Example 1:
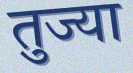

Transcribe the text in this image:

तुज्या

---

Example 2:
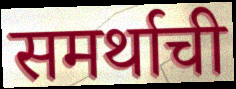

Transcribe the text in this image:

समर्थाची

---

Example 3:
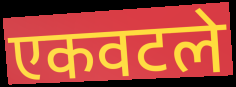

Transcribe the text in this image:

एकवटले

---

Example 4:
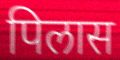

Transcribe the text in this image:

पिलास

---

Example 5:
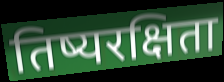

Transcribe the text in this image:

तिष्यरक्षिता